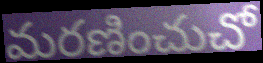
మరణించుచో